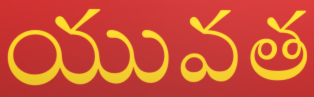
యువత